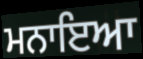
ਮਨਾਇਆ